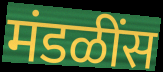
मंडळींस